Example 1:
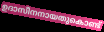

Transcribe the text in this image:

ഉദാസീനനായതുകൊണ്ട്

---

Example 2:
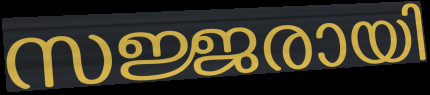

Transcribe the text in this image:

സജ്ജരായി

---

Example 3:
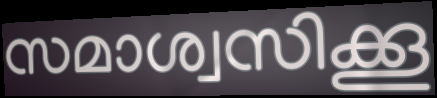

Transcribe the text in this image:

സമാശ്വസിക്കൂ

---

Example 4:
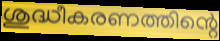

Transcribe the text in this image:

ശുദ്ധീകരണത്തിന്റെ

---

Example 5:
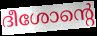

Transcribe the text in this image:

ദീശോന്റെ